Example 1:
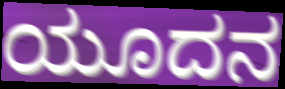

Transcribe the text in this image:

ಯೂದನ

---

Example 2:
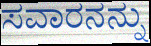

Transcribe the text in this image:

ಸವಾರನನ್ನು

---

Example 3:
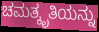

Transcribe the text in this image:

ಚಮತ್ಕೃತಿಯನ್ನು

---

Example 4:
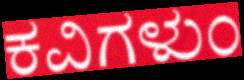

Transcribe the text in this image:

ಕವಿಗಳುಂ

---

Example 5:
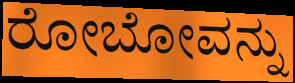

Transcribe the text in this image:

ರೋಬೋವನ್ನು